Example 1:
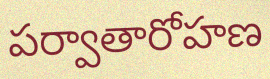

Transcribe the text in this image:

పర్వాతారోహణ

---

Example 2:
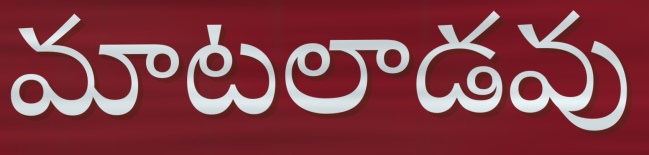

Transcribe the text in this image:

మాటలాడవు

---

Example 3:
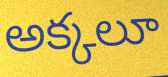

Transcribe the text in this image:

అక్కలూ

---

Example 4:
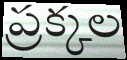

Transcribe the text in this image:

ప్రక్కల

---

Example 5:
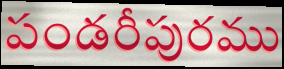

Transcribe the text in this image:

పండరీపురము